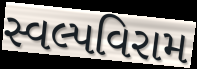
સ્વલ્પવિરામ